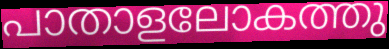
പാതാളലോകത്തു